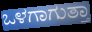
ಒಳಗಾಗುತ್ತಾ